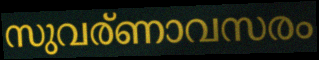
സുവര്ണാവസരം